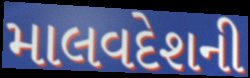
માલવદેશની